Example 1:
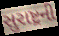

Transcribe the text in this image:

સુરાષ્ટ્રની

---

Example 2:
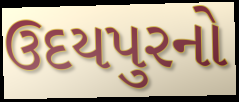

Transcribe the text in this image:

ઉદયપુરનો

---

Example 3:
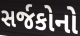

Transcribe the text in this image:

સર્જકોનો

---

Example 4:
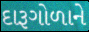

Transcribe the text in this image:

દારૂગોળાને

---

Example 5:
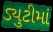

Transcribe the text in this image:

ડ્યુટીમાં